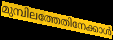
മുമ്പിലത്തേതിനേക്കാൾ